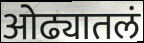
ओढ्यातलं